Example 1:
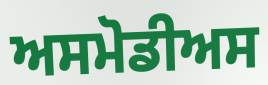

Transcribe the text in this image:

ਅਸਮੋਡੀਅਸ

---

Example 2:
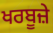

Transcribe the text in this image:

ਖਰਬੂਜ਼ੇ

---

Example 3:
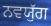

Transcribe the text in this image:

ਨਵਯੁੱਗ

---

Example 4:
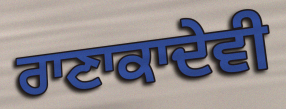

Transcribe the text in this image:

ਰਾਣਾਕਾਦੇਵੀ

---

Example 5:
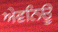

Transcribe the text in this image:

ਅੇਵਨਿਊ